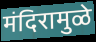
मंदिरामुळे